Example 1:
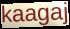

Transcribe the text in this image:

kaagaj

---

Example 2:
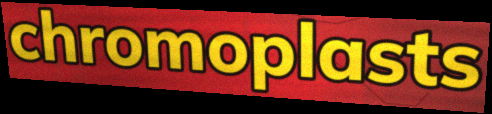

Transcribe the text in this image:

chromoplasts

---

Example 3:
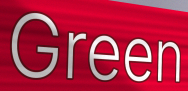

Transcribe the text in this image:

Green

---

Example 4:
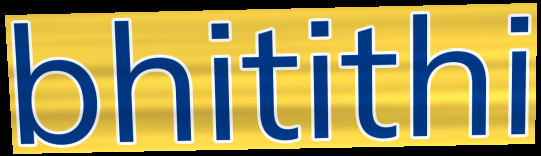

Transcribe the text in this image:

bhitithi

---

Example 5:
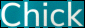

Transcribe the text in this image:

Chick